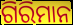
ଗିରିମାନ